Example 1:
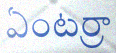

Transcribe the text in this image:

ఏంటర్రా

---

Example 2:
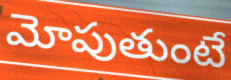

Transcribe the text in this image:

మోపుతుంటే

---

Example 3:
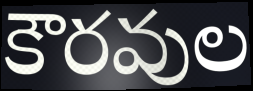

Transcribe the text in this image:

కౌరవుల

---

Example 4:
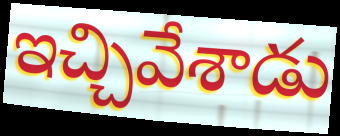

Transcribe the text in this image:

ఇచ్చివేశాడు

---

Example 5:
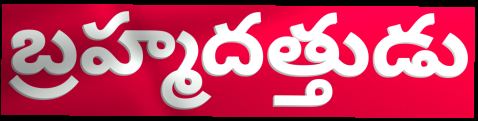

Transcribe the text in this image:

బ్రహ్మదత్తుడు